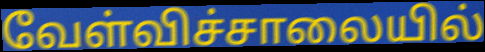
வேள்விச்சாலையில்